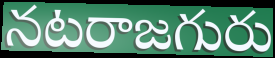
నటరాజగురు